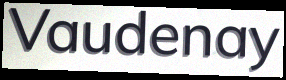
Vaudenay